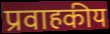
प्रवाहकीय